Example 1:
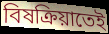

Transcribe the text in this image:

বিষক্রিয়াতেই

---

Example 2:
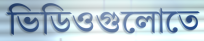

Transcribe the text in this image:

ভিডিওগুলোতে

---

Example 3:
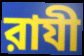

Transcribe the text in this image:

রাযী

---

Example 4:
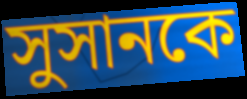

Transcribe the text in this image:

সুসানকে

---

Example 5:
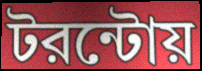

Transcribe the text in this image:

টরন্টোয়